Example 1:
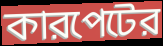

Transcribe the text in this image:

কারপেটের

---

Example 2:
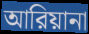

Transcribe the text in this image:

আরিয়ানা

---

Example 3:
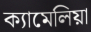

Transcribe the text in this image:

ক্যামেলিয়া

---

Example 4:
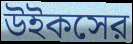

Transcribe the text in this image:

উইকসের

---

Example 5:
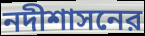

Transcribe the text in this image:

নদীশাসনের